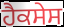
ਹੈਕਸੇਸ